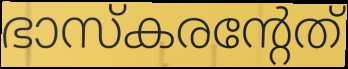
ഭാസ്കരന്റേത്